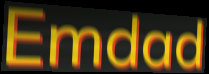
Emdad